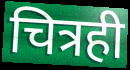
चित्रही